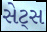
સેટ્સ